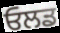
ਓਲਡ